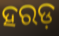
ହରଡ଼